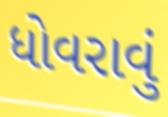
ધોવરાવું